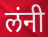
लंनी